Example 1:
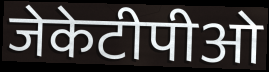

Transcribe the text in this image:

जेकेटीपीओ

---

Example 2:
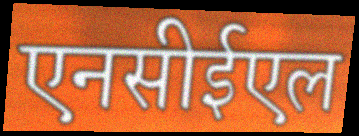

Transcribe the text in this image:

एनसीईएल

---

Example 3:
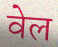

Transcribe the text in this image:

वेल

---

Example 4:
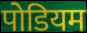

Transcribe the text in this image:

पोडियम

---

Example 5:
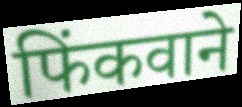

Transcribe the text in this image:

फिंकवाने